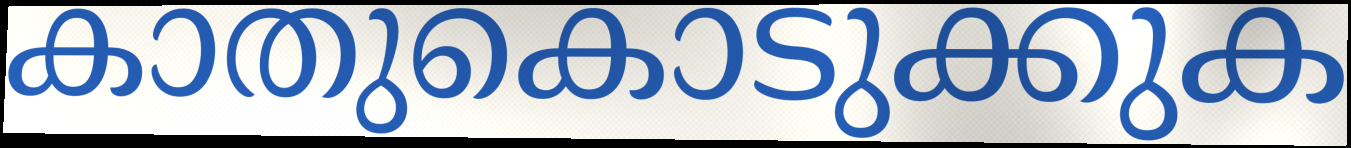
കാതുകൊടുക്കുക